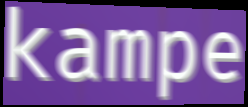
kampe